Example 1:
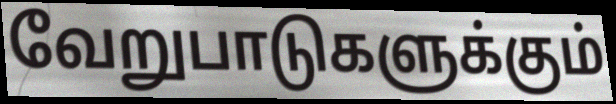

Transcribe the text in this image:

வேறுபாடுகளுக்கும்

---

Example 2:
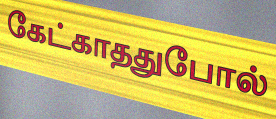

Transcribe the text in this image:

கேட்காததுபோல்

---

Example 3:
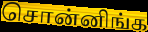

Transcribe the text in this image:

சொன்னிங்க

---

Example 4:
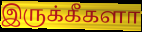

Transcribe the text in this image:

இருக்கீகளா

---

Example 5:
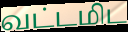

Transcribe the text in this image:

வட்டமிட